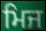
ਮਿਜ